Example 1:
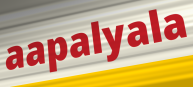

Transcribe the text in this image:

aapalyala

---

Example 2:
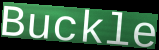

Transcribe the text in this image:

Buckle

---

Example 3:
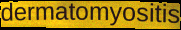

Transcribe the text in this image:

dermatomyositis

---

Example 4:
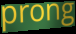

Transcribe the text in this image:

prong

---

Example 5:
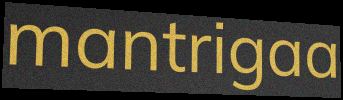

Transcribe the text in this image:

mantrigaa